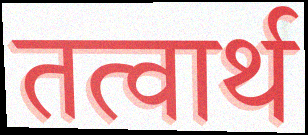
तत्वार्थ